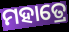
ମହାତ୍ରେ